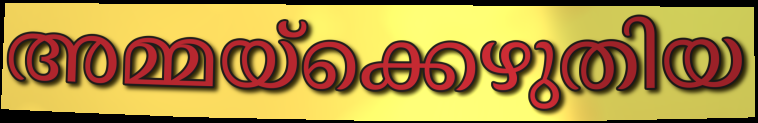
അമ്മയ്ക്കെഴുതിയ